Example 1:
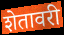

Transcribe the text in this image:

शेतावरी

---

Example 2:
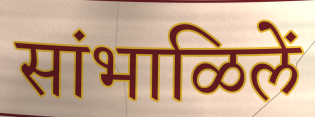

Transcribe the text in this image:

सांभाळिलें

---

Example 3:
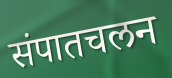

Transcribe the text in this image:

संपातचलन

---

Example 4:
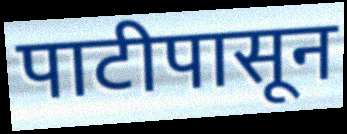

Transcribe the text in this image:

पाटीपासून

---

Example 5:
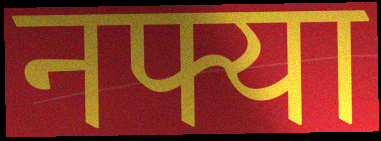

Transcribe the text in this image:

नफ्या